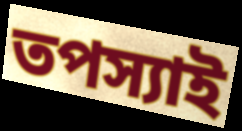
তপস্যাই